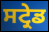
ਸਟ੍ਰੇਡ